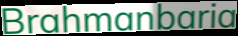
Brahmanbaria